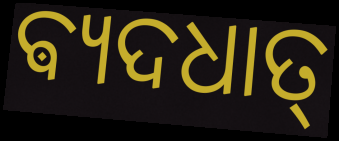
ଵ୍ୟଦଧାତ୍